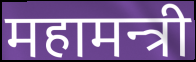
महामन्त्री